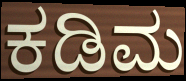
ಕಡಿಮ